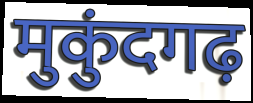
मुकुंदगढ़